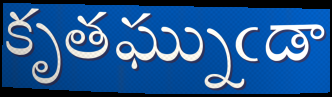
కృతఘ్నుఁడా